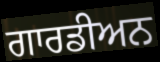
ਗਾਰਡੀਅਨ